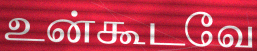
உன்கூடவே